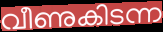
വീണുകിടന്ന